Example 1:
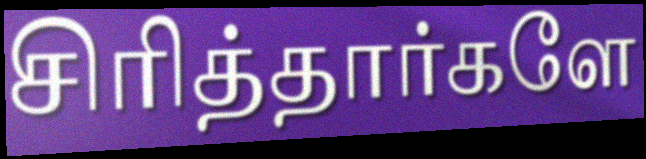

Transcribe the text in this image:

சிரித்தார்களே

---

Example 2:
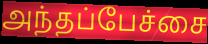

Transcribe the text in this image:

அந்தப்பேச்சை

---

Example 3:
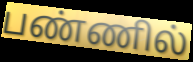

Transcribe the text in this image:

பண்ணில்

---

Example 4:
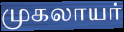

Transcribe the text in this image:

முகலாயர்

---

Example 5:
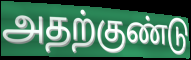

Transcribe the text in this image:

அதற்குண்டு